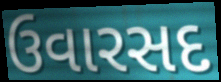
ઉવારસદ